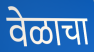
वेळाचा